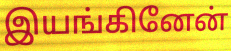
இயங்கினேன்